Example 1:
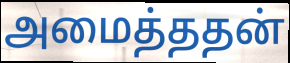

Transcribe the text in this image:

அமைத்ததன்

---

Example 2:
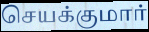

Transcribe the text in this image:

செயக்குமார்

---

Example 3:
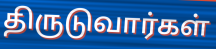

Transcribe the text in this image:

திருடுவார்கள்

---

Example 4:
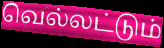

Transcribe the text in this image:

வெல்லட்டும்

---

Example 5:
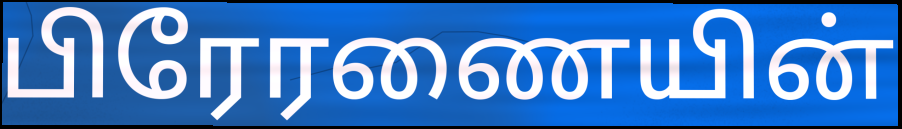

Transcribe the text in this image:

பிரேரணையின்